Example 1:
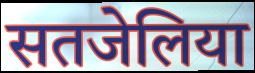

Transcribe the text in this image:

सतजेलिया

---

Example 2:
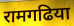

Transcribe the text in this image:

रामगढिया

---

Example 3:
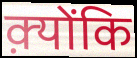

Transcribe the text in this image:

क़्योंकि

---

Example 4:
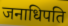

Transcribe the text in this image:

जनाधिपति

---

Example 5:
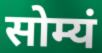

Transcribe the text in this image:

सोम्यं